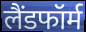
लैंडफॉर्म